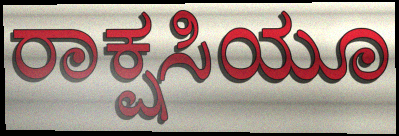
ರಾಕ್ಷಸಿಯೂ